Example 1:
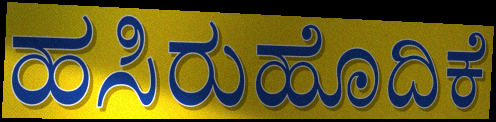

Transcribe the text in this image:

ಹಸಿರುಹೊದಿಕೆ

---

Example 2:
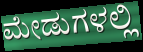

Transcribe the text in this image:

ಮೇಡುಗಳಲ್ಲಿ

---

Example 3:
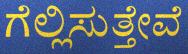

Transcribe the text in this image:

ಗೆಲ್ಲಿಸುತ್ತೇವೆ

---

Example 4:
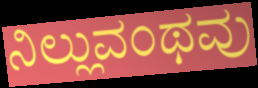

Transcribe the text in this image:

ನಿಲ್ಲುವಂಥವು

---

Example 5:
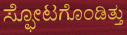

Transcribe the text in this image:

ಸ್ಫೋಟಗೊಂಡಿತ್ತು